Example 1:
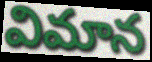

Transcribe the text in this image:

విమాన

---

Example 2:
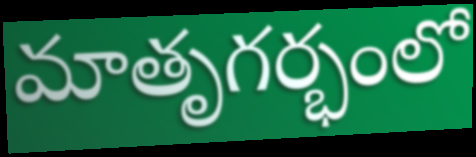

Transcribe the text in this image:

మాతృగర్భంలో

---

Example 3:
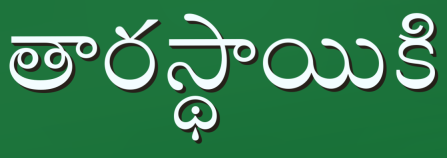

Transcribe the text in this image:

తారస్థాయికి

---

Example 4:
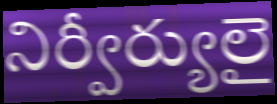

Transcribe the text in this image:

నిర్వీర్యులై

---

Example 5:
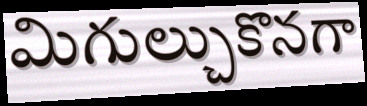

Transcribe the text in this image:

మిగుల్చుకొనగా